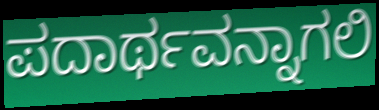
ಪದಾರ್ಥವನ್ನಾಗಲಿ